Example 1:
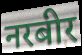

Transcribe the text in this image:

नरबीर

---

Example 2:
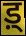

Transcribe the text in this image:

ड़्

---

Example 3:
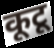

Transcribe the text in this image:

कूटू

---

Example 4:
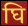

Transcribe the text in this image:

घि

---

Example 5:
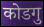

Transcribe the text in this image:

कोडगु